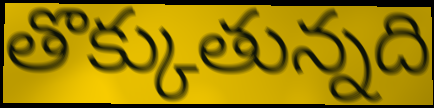
తొక్కుతున్నది